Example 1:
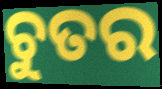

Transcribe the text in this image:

ଚୁତର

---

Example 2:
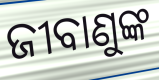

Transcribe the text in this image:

ଜୀବାଣୁଙ୍କ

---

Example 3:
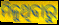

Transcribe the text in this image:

ମିଳୁଥିବାରୁ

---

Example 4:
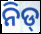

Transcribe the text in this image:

ନିଡ୍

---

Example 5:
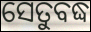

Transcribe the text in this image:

ସେତୁବଦ୍ଧ